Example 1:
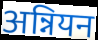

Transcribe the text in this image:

अन्नियन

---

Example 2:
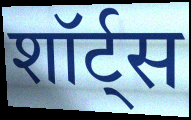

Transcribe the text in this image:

शॉर्ट्स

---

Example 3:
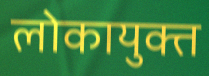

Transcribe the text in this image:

लोकायुक्त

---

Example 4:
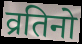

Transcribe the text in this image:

व्रतिनो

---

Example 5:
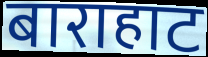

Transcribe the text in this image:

बाराहाट